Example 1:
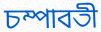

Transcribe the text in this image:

চম্পাবতী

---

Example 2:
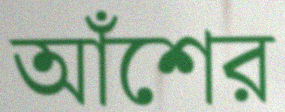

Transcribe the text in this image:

আঁশের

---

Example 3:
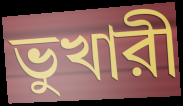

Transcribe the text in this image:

ভুখারী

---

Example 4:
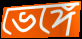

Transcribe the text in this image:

ভেঙ্গে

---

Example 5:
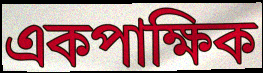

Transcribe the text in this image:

একপাক্ষিক